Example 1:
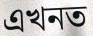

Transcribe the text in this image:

এখনত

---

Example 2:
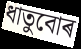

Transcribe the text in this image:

ধাতুবোৰ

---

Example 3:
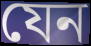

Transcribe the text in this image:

যেন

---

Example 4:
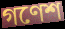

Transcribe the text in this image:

গণেশ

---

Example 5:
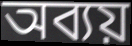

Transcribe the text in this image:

অব্যয়